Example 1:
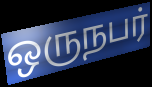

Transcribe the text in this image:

ஒருநபர்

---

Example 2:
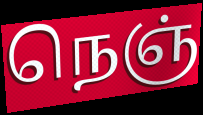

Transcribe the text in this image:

நெஞ்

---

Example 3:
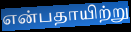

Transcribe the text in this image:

என்பதாயிற்று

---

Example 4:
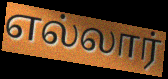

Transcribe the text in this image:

எல்லார்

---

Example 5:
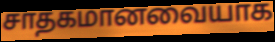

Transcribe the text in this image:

சாதகமானவையாக